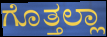
ಗೊತ್ತಲ್ಲಾ